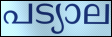
പട്യാല